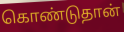
கொண்டுதான்